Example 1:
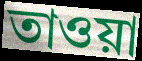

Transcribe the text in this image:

তাওয়া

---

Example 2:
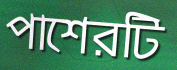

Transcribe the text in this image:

পাশেরটি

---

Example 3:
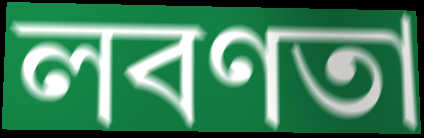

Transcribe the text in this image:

লবণতা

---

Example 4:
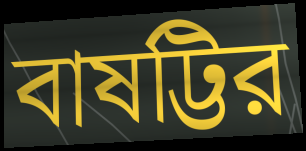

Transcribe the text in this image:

বাষট্টির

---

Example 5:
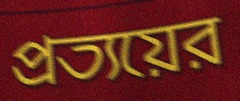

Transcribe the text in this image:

প্রত্যয়ের